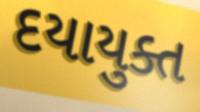
દયાયુક્ત